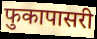
फुकापासरी